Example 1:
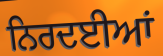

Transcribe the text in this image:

ਨਿਰਦਈਆਂ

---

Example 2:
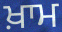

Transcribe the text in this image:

ਖ਼ਾਮ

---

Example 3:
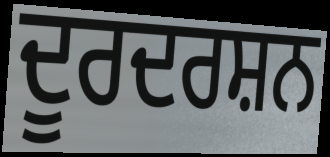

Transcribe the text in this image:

ਦੂਰਦਰਸ਼ਨ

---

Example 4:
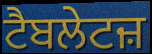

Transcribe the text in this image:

ਟੈਬਲੇਟਜ਼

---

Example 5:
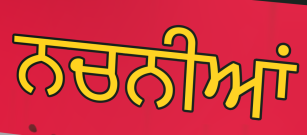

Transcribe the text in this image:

ਨਚਨੀਆਂ